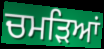
ਚਮੜਿਆਂ